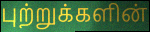
புற்றுக்களின்